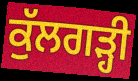
ਕੁੱਲਗੜ੍ਹੀ